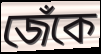
জেঁকে